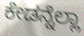
ಕೇಡನ್ನೆಲ್ಲಾ